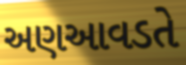
અણઆવડતે